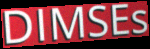
DIMSEs